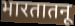
भारतातनू